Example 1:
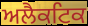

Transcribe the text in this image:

ਅਲੈਕਟਿਕ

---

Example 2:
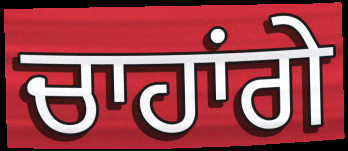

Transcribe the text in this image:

ਚਾਹਾਂਗੇ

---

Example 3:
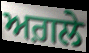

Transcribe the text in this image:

ਅਗ਼ਲੇ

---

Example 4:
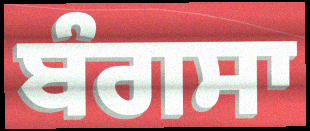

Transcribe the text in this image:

ਬੰਗਸਾ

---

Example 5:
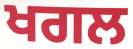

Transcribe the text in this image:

ਖਗਲ